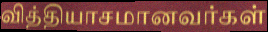
வித்தியாசமானவர்கள்